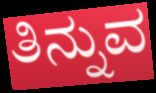
ತಿನ್ನುವ